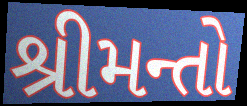
શ્રીમન્તો